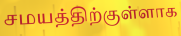
சமயத்திற்குள்ளாக